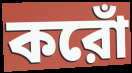
করোঁ